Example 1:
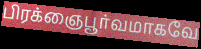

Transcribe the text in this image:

பிரக்ஞைபூர்வமாகவே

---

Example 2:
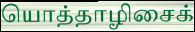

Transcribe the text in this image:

யொத்தாழிசைக்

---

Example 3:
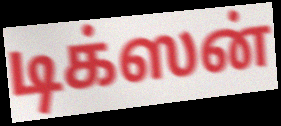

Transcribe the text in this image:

டிக்ஸன்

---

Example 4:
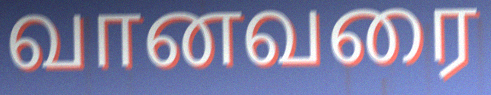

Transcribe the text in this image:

வானவரை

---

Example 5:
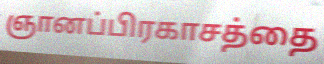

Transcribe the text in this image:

ஞானப்பிரகாசத்தை